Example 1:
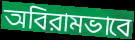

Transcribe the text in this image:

অবিরামভাবে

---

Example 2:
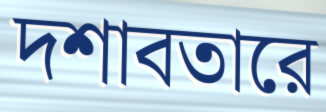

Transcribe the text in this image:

দশাবতারে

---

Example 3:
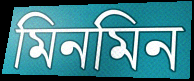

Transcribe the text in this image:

মিনমিন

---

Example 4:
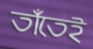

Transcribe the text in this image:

তাঁতেই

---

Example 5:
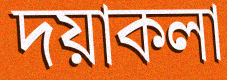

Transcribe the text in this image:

দয়াকলা